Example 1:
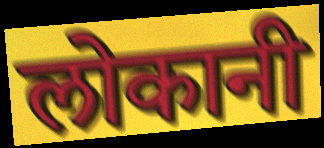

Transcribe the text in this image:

लोकानी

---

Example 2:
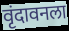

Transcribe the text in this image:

वृंदावनला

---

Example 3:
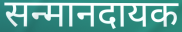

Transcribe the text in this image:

सन्मानदायक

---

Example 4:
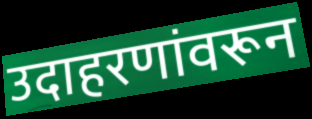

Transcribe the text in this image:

उदाहरणांवरून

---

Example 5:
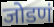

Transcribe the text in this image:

जोडणं